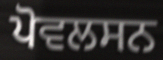
ਪੋਵਲਸਨ